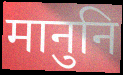
मानुनि